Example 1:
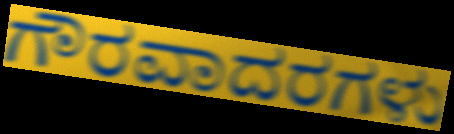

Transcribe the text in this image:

ಗೌರವಾದರಗಳು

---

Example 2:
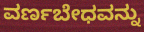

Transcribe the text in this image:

ವರ್ಣಬೇಧವನ್ನು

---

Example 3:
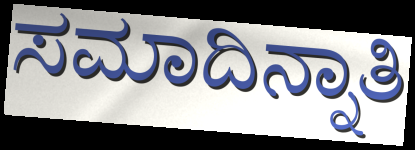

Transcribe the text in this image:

ಸಮಾದಿನ್ನಾತಿ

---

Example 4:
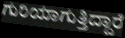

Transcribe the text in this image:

ಗುರಿಯಾಗುತ್ತಿದ್ದಾರೆ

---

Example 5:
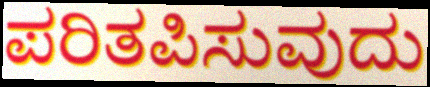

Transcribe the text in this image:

ಪರಿತಪಿಸುವುದು